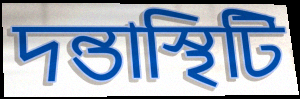
দন্তাস্থিটি